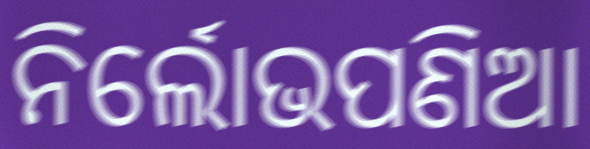
ନିର୍ଲୋଭପଣିଆ